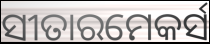
ସୀତାରମେକର୍ସ